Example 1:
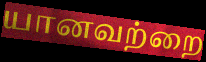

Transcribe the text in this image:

யானவற்றை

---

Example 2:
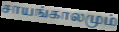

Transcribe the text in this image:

சாயங்காலமும்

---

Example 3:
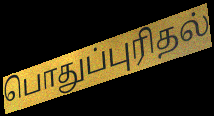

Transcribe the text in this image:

பொதுப்புரிதல்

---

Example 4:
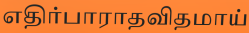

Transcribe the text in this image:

எதிர்பாராதவிதமாய்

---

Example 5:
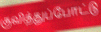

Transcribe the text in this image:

குவித்துப்போட்டு